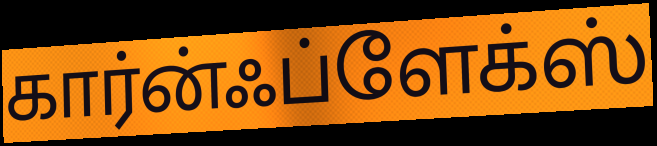
கார்ன்ஃப்ளேக்ஸ்